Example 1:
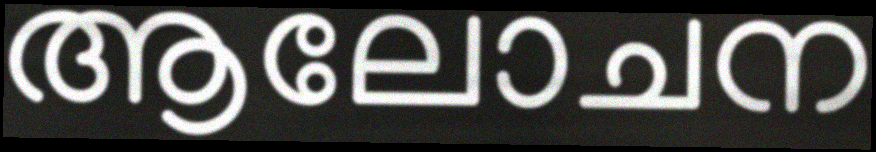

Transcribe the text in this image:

ആലോചന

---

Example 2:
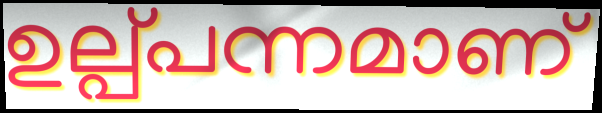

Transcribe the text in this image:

ഉല്പ്പന്നമാണ്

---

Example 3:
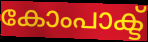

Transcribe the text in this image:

കോംപാക്ട്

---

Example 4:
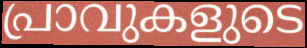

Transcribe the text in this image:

പ്രാവുകളുടെ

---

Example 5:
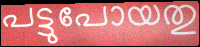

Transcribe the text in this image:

പട്ടുപോയതു